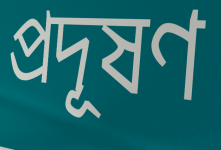
প্ৰদূষণ